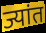
ज्यांत